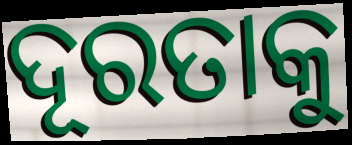
ଦୂରତାକୁ